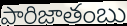
పారిజాతంబు